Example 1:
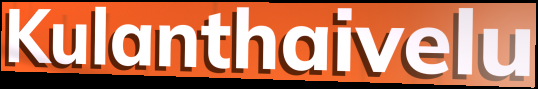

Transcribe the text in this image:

Kulanthaivelu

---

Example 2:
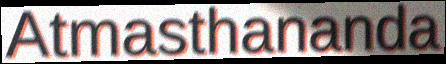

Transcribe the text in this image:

Atmasthananda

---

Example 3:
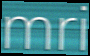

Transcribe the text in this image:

mri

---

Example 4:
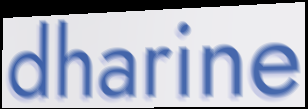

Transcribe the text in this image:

dharine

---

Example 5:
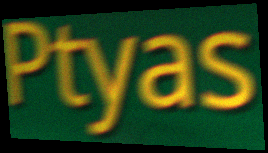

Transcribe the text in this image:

Ptyas